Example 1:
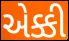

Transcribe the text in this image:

એક્કી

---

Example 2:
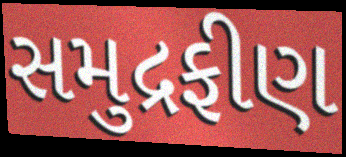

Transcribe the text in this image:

સમુદ્રફીણ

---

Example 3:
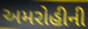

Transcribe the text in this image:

અમરોહીની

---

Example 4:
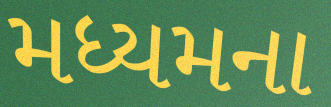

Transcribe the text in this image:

મધ્યમના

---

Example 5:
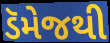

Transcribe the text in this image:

ડૅમેજથી